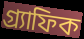
গ্র্যাফিক